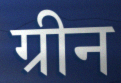
ग्रीन